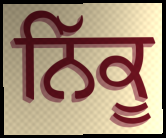
ਨਿੱਕੂ